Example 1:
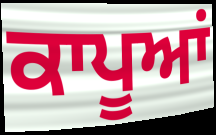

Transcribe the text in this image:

ਕਾਪੂਆਂ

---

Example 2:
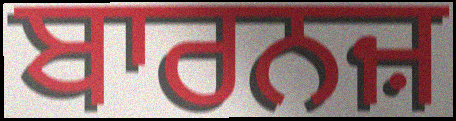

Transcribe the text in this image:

ਬਾਰਨਜ਼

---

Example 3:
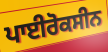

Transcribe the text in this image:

ਪਾਈਰੋਕਸੀਨ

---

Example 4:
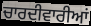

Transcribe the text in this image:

ਚਾਰਦੀਵਾਰੀਆਂ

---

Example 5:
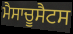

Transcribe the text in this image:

ਮੈਸਾਚੂਸੈਟਸ